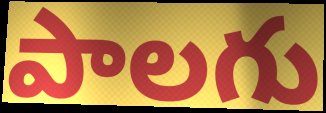
పాలగు